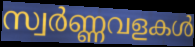
സ്വർണ്ണവളകൾ